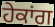
ਹੇਕਾਂਗ